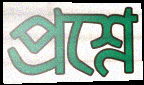
প্ৰশ্নে